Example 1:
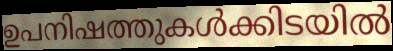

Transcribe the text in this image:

ഉപനിഷത്തുകൾക്കിടയിൽ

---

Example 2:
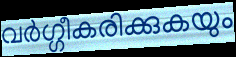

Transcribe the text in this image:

വർഗ്ഗീകരിക്കുകയും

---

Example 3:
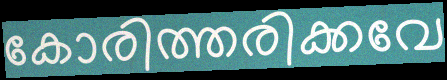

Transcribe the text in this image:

കോരിത്തരിക്കവേ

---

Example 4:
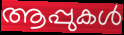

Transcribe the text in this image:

ആപ്പുകൾ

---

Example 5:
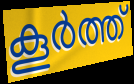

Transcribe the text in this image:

കൂർത്ത്